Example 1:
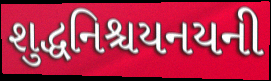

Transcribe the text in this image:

શુદ્ધનિશ્ચયનયની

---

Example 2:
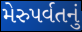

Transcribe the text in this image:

મેરુપર્વતનું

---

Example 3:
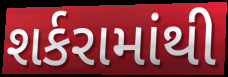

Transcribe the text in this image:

શર્કરામાંથી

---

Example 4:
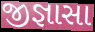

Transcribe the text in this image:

જીજ્ઞાસા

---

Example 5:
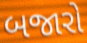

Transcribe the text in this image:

બજારો